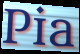
Pia